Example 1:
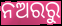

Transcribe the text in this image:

ନଅରରୁ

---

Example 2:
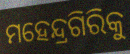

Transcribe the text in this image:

ମହେନ୍ଦ୍ରଗିରିକୁ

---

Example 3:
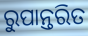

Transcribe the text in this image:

ରୁପାନ୍ତରିତ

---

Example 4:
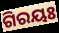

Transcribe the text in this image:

ଗିରୟଃ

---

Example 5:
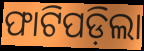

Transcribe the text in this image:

ଫାଟିପଡ଼ିଲା